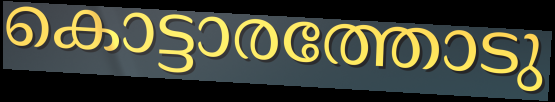
കൊട്ടാരത്തോടു